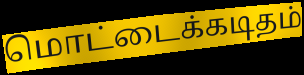
மொட்டைக்கடிதம்